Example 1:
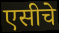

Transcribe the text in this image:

एसीचे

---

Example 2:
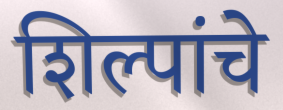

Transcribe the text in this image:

शिल्पांचे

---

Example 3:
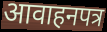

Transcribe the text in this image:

आवाहनपत्र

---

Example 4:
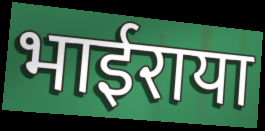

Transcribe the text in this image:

भाईराया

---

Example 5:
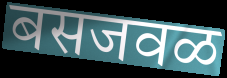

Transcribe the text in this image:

बसजवळ